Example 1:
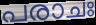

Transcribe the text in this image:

പരാചഃ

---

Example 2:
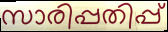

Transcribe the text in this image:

സാരിപ്പതിപ്പ്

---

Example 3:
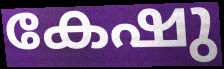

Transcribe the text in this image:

കേഷു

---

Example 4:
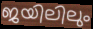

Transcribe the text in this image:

ജയിലിലും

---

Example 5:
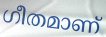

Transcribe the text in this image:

ഗീതമാണ്